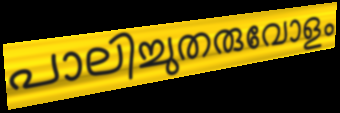
പാലിച്ചുതരുവോളം